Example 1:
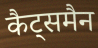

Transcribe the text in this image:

कैट्समैन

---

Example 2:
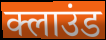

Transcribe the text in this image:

क्लाउंड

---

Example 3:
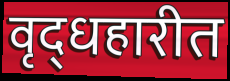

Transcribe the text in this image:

वृद्धहारीत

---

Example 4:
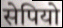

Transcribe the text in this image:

सेपियो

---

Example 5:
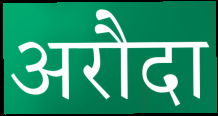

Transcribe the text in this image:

अरौदा